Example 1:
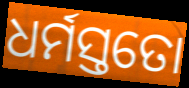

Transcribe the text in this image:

ଧର୍ମସ୍ତତୋ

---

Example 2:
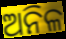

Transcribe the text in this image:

ଅନିଳ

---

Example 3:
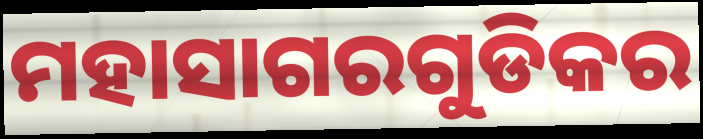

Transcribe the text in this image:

ମହାସାଗରଗୁଡିକର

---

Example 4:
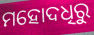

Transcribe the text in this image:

ମହୋଦଧିରୁ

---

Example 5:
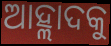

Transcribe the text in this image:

ଆହ୍ଲାଦକୁ